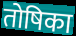
तोषिका